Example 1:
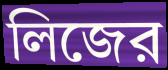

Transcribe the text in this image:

লিজের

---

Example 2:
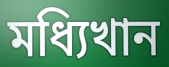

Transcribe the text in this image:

মধ্যিখান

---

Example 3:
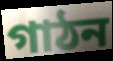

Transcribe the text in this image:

গাঠন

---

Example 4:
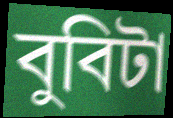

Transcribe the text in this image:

বুবিটা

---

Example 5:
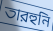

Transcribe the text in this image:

তারহুনি